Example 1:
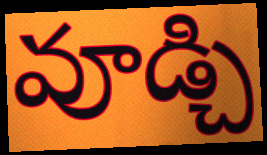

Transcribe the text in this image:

వూడ్చి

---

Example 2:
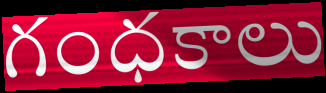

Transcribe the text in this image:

గంధకాలు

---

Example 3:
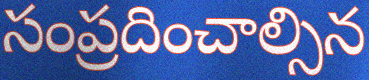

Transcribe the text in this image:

సంప్రదించాల్సిన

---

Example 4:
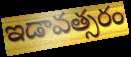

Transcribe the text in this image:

ఇడావత్సరం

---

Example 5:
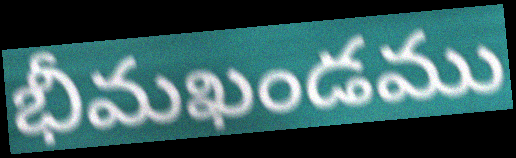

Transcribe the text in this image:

భీమఖండము